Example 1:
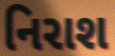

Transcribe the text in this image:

નિરાશ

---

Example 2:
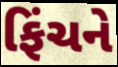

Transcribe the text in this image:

ફિંચને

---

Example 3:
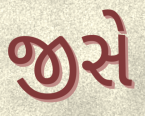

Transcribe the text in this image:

જીસે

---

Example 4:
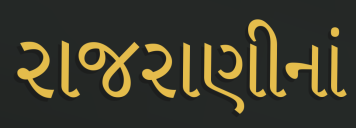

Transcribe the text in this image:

રાજરાણીનાં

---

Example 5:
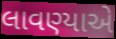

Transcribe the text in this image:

લાવણ્યાએ